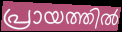
പ്രായത്തിൽ